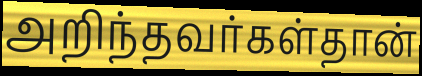
அறிந்தவர்கள்தான்